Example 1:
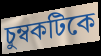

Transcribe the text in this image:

চুম্বকটিকে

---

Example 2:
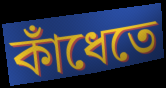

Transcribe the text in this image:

কাঁধেতে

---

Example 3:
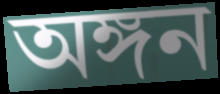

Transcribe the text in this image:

অঙ্গন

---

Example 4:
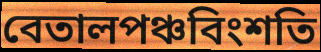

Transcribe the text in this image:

বেতালপঞ্চবিংশতি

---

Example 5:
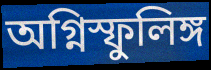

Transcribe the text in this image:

অগ্নিস্ফুলিঙ্গ